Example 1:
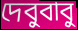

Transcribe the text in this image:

দেবুবাবু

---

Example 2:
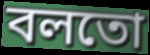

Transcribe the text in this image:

বলতো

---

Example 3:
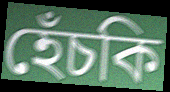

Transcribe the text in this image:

হেঁচকি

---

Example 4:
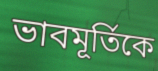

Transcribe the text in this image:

ভাবমূর্তিকে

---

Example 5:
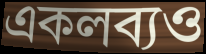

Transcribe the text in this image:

একলব্যও